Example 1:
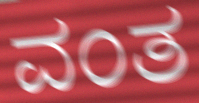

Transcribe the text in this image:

ವಂತ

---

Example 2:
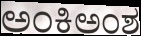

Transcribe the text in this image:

ಅಂಕಿಅಂಶ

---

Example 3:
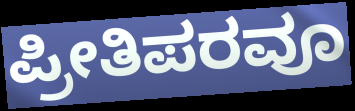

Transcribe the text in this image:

ಪ್ರೀತಿಪರವೂ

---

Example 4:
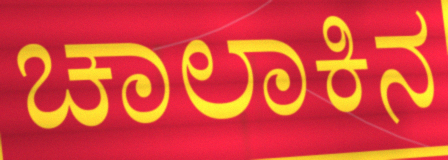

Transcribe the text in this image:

ಚಾಲಾಕಿನ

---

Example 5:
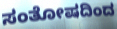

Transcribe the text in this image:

ಸಂತೋಷದಿಂದ